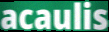
acaulis